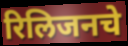
रिलिजनचे